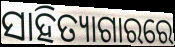
ସାହିତ୍ୟାଗାରରେ